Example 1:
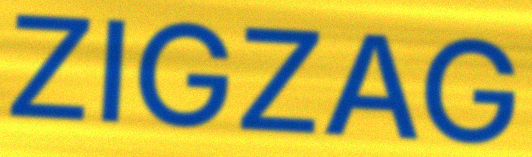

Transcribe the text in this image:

ZIGZAG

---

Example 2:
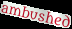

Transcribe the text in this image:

ambushed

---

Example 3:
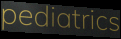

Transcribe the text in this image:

pediatrics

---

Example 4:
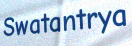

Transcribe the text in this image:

Swatantrya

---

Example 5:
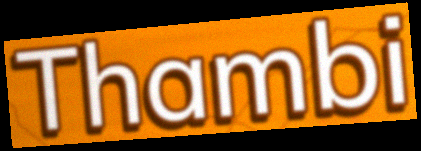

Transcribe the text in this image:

Thambi